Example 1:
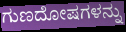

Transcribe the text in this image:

ಗುಣದೋಷಗಳನ್ನು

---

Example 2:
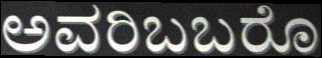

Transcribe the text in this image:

ಅವರಿಬಬರೊ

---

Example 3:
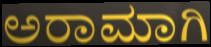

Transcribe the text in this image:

ಅರಾಮಾಗಿ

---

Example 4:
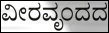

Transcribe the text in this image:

ವೀರವೃಂದದ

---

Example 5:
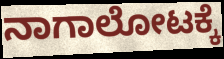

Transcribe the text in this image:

ನಾಗಾಲೋಟಕ್ಕೆ